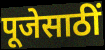
पूजेसाठीं